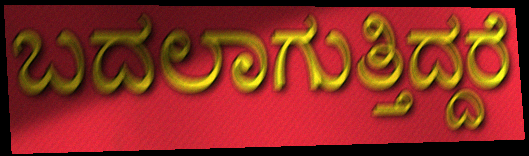
ಬದಲಾಗುತ್ತಿದ್ದರೆ